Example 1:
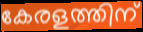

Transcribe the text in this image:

കേരളത്തിന്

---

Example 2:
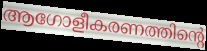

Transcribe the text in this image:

ആഗോളീകരണത്തിന്റെ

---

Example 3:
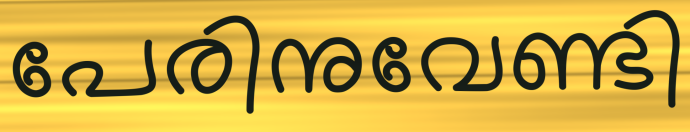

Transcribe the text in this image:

പേരിനുവേണ്ടി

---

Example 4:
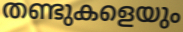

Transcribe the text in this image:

തണ്ടുകളെയും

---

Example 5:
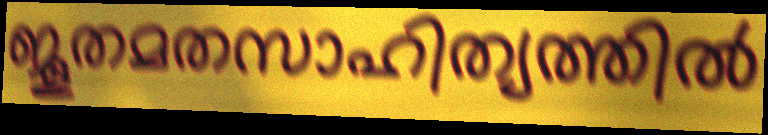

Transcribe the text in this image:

ജൂതമതസാഹിത്യത്തിൽ